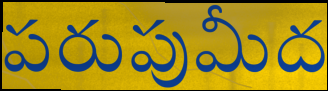
పరుపుమీద